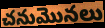
చనుమొనలు